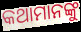
କଥାମାନଙ୍କୁ